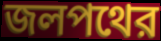
জলপথের